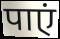
पाएं